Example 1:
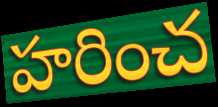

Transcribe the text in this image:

హరించ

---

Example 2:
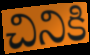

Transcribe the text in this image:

చినికి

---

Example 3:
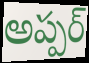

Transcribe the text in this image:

అప్పర్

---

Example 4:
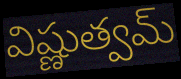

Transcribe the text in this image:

విష్ణుత్వమ్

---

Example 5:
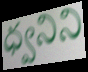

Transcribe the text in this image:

ధ్వనిని